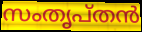
സംതൃപ്തൻ